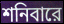
শনিবারে